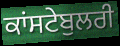
ਕਾਂਸਟੇਬੁਲਰੀ